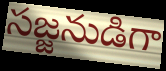
సజ్జనుడిగా